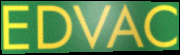
EDVAC